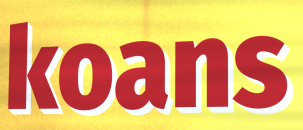
koans